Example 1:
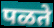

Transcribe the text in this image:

पळते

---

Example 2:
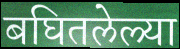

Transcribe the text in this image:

बघितलेल्या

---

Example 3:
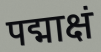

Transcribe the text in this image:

पद्माक्षं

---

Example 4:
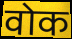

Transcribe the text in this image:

वोक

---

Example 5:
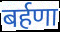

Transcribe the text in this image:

बर्हणा